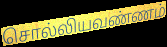
சொல்லியவண்ணம்